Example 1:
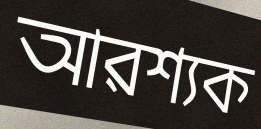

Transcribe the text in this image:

আৱশ্যক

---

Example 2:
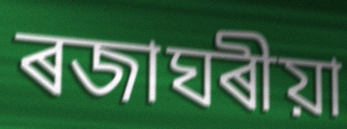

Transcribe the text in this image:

ৰজাঘৰীয়া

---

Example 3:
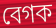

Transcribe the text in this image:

বেগক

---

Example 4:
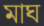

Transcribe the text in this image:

মাঘ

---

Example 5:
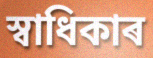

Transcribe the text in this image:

স্বাধিকাৰ